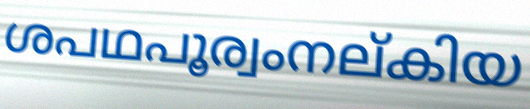
ശപഥപൂര്വംനല്കിയ